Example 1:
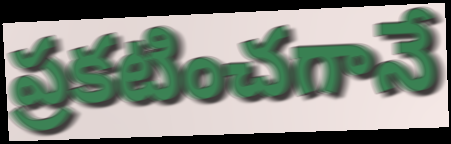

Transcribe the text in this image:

ప్రకటించగానే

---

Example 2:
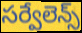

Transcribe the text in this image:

సర్వేలెన్స్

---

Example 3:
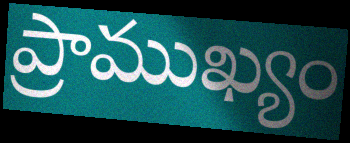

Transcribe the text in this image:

ప్రాముఖ్యం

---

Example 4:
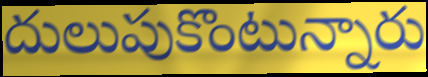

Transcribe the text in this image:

దులుపుకొంటున్నారు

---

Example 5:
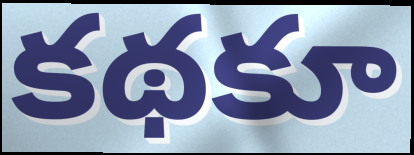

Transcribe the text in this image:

కథకూ